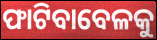
ଫାଟିବାବେଳକୁ